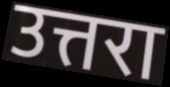
उत्तरा